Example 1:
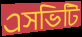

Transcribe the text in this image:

এসভিটি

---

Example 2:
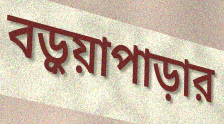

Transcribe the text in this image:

বড়ুয়াপাড়ার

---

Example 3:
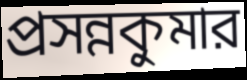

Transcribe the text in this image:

প্রসন্নকুমার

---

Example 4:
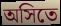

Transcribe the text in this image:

অসিতে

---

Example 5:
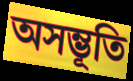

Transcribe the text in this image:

অসম্ভূতি